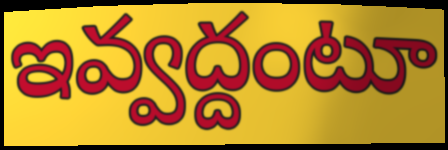
ఇవ్వద్దంటూ